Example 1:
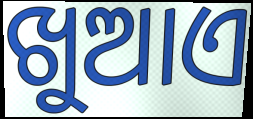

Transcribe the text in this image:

ଖୁଆଏ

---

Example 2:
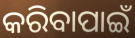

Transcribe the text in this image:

କରିବାପାଇଁ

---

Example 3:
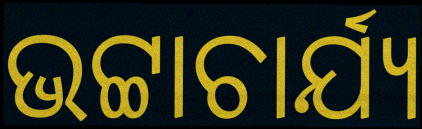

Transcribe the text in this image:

ଭଟ୍ଟାଚାର୍ଯ୍ୟ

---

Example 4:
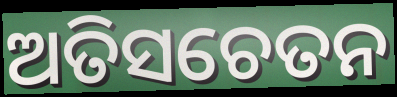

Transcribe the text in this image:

ଅତିସଚେତନ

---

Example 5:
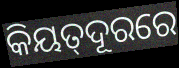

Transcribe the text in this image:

କିୟତ୍‌ଦୂରରେ